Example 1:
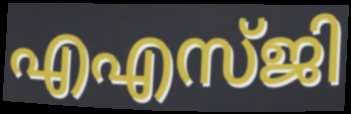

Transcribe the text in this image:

എഎസ്ജി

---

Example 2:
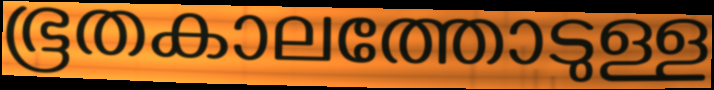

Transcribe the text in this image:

ഭൂതകാലത്തോടുള്ള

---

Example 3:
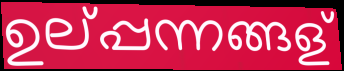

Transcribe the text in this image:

ഉല്പ്പന്നങ്ങള്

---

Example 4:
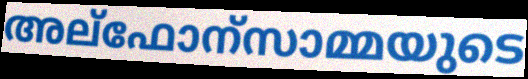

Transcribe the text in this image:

അല്ഫോന്സാമ്മയുടെ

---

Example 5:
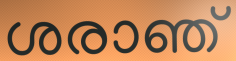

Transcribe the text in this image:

ശരാഞ്